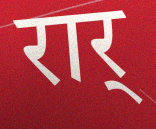
रार्